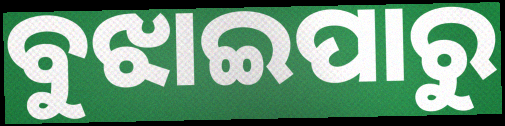
ବୁଝାଇପାରୁ